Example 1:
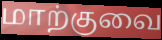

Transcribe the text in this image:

மாற்குவை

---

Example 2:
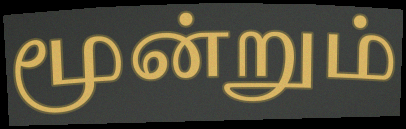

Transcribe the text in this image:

மூன்றும்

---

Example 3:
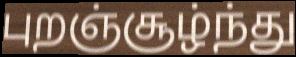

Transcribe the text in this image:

புறஞ்சூழ்ந்து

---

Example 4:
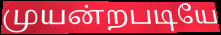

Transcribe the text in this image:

முயன்றபடியே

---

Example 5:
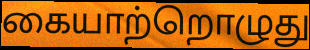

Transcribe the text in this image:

கையாற்றொழுது